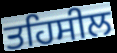
ਤਹਿਸੀਲ